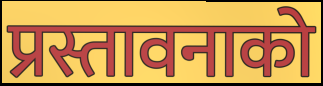
प्रस्तावनाको